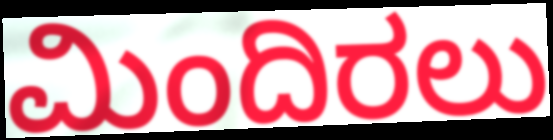
ಮಿಂದಿರಲು